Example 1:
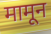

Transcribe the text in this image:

मामून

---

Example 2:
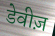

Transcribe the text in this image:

डेवीज़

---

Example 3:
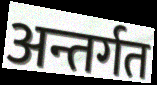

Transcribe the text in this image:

अन्तर्गत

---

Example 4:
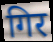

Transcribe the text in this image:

गिर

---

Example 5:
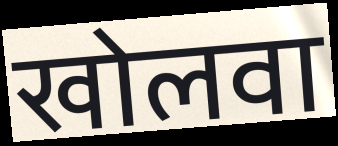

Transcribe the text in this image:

खोलवा